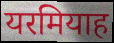
यरमियाह